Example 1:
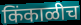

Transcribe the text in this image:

किंकाळीच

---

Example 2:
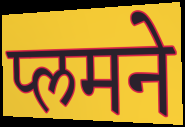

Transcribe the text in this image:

प्लमने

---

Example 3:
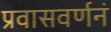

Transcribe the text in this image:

प्रवासवर्णनं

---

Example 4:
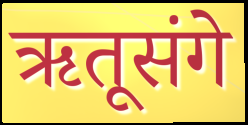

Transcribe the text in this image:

ऋतूसंगे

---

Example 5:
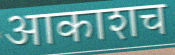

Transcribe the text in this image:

आकाशच